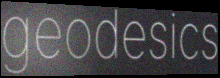
geodesics